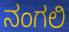
ನಂಗಲಿ